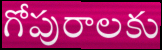
గోపురాలకు